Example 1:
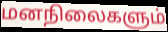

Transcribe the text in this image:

மனநிலைகளும்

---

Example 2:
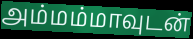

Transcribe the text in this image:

அம்மம்மாவுடன்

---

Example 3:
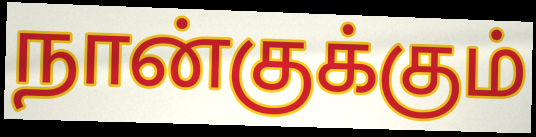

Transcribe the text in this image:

நான்குக்கும்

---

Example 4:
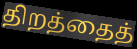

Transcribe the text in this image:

திறத்தைத்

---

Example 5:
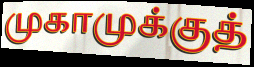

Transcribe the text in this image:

முகாமுக்குத்